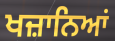
ਖਜ਼ਾਨਿਆਂ